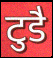
टुडै